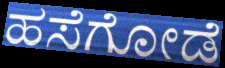
ಹಸೆಗೋಡೆ